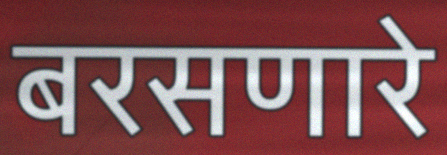
बरसणारे